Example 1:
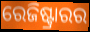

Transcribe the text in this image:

ରେଜିଷ୍ଟ୍ରାରର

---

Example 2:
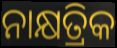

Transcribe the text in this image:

ନାକ୍ଷତ୍ରିକ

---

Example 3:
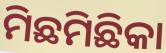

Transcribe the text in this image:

ମିଛମିଛିକା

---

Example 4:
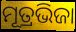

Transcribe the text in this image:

ମୂତ୍ରଭିଜା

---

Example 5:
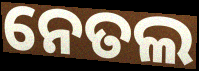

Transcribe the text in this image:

ନେତଲ